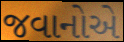
જવાનોએ